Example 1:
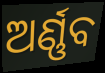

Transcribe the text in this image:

ଅର୍ଣ୍ଣବ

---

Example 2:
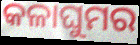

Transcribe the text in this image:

କଳାଘୁମର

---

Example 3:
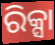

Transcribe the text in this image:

ରିକ୍ସା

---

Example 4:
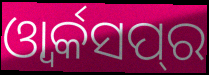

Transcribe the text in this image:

ଓ୍ୱାର୍କସପ୍‌ର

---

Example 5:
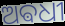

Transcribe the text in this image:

ଅଵଧୀ